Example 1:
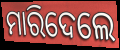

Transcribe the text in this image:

ମାରିଦେଲେ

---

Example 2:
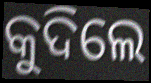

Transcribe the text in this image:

କୁଦିଲେ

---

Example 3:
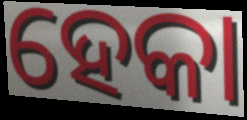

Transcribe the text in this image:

ହେକା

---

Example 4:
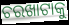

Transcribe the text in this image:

ଚରଖାଟାକୁ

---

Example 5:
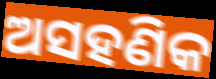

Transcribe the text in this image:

ଅସହଣିକ